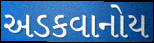
અડકવાનોય